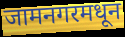
जामनगरमधून